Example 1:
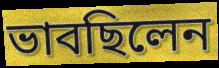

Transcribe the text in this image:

ভাবছিলেন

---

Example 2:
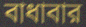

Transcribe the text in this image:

বাধাবার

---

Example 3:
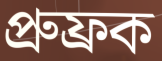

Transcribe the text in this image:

প্রুফ্রক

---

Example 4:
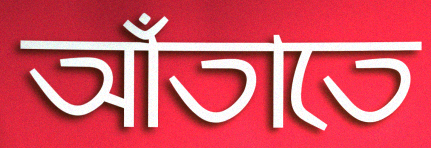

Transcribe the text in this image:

আঁতাতে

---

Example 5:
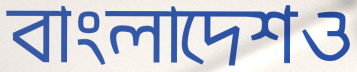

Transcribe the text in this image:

বাংলাদেশও